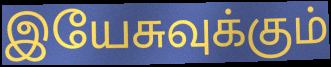
இயேசுவுக்கும்